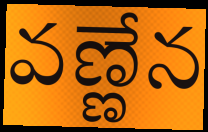
వణ్ణేన